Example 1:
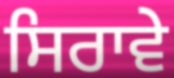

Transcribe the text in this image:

ਸਿਰਾਵੇ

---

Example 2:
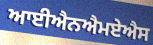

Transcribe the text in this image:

ਆਈਐਨਐਮਏਐਸ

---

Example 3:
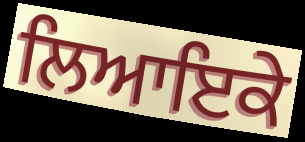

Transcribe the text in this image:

ਲਿਆਇਕੇ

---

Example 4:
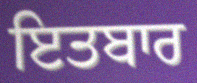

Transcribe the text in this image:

ਇਤਬਾਰ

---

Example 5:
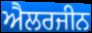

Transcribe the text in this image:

ਐਲਰਜੀਨ